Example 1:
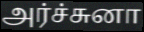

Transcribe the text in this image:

அர்ச்சுனா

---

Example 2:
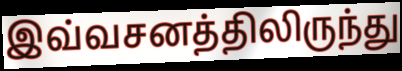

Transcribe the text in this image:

இவ்வசனத்திலிருந்து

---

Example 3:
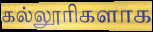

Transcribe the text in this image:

கல்லூரிகளாக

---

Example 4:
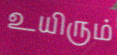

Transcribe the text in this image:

உயிரும்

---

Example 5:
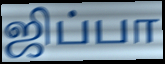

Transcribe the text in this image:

ஜிப்பா